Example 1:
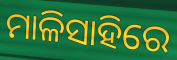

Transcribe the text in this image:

ମାଳିସାହିରେ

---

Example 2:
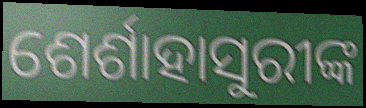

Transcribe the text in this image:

ଶେର୍ଶାହାସୁରୀଙ୍କ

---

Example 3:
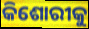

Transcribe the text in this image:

କିଶୋରୀକୁ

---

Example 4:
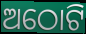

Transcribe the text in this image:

ଅଠୋଟି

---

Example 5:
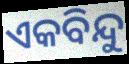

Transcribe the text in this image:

ଏକବିନ୍ଦୁ